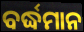
ବର୍ଦ୍ଧମାନ